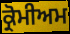
ਕ੍ਰੋਮੀਅਮ